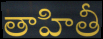
తాహితీ